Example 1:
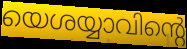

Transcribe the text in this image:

യെശയ്യാവിന്റെ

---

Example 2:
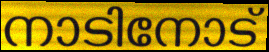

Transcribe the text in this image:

നാടിനോട്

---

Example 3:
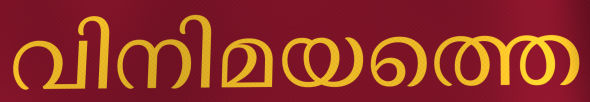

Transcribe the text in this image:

വിനിമയത്തെ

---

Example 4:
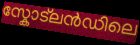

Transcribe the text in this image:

സ്കോട്ലൻഡിലെ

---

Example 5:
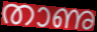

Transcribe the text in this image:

താണു